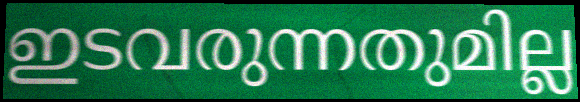
ഇടവരുന്നതുമില്ല